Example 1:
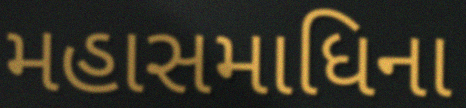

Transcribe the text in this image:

મહાસમાધિના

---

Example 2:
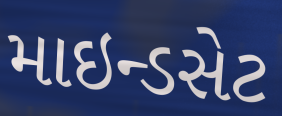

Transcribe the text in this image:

માઇન્ડસેટ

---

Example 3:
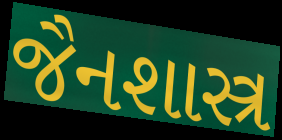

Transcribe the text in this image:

જૈનશાસ્ત્ર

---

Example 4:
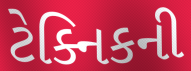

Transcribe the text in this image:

ટેક્નિકની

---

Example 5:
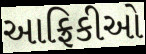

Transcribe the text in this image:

આફ્રિકીઓ